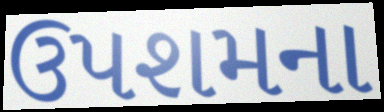
ઉપશમના